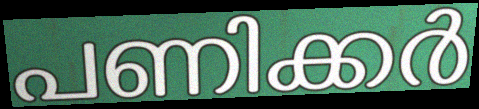
പണിക്കർ